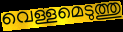
വെള്ളമെടുത്തു